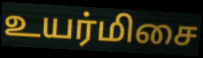
உயர்மிசை